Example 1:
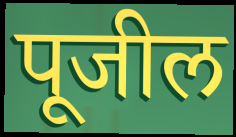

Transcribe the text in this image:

पूजील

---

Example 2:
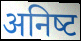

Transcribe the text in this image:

अनिष्‍ट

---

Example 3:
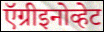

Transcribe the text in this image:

ऍग्रीइनोव्हेट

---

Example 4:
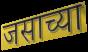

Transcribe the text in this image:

जसाच्या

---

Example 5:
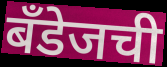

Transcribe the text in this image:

बँडेजची